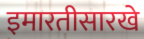
इमारतीसारखे